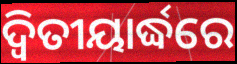
ଦ୍ୱିତୀୟାର୍ଦ୍ଧରେ